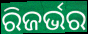
ରିଜର୍ଭର